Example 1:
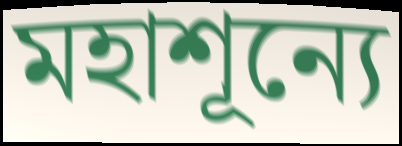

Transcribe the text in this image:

মহাশূন্যে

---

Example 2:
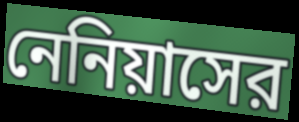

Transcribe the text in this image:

নেনিয়াসের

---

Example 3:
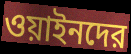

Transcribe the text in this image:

ওয়াইনদের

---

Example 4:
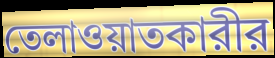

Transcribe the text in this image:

তেলাওয়াতকারীর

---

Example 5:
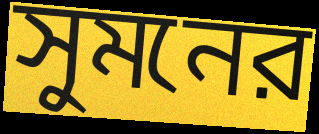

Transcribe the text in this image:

সুমনের